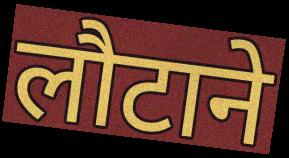
लौटाने